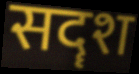
सदॄश